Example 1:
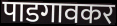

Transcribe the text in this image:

पाडगावकर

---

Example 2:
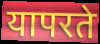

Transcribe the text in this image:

यापरते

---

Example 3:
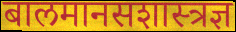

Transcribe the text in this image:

बालमानसशास्त्रज्ञ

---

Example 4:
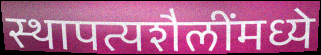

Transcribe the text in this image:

स्थापत्यशैलींमध्ये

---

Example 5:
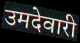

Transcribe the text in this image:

उमदेवारी